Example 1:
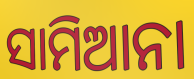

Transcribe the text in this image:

ସାମିଆନା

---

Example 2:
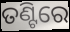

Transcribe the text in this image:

ତଣ୍ଟିରେ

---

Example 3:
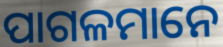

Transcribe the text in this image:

ପାଗଳମାନେ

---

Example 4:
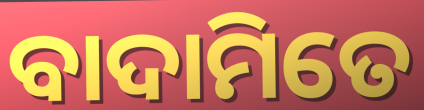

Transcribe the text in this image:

ବାଦାମିତେ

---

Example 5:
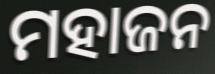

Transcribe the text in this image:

ମହାଜନ